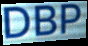
DBP